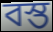
বস্ত